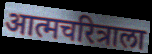
आत्मचरित्राला